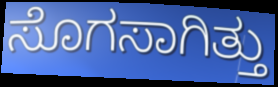
ಸೊಗಸಾಗಿತ್ತು